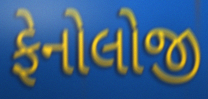
ફેનોલોજી